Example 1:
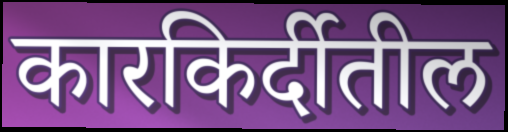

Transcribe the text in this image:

कारकिर्दीतील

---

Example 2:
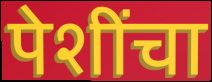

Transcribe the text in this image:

पेशींचा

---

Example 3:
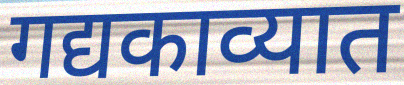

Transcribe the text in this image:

गद्यकाव्यात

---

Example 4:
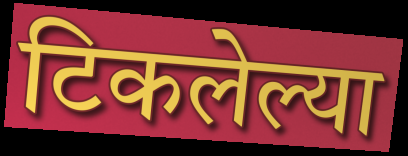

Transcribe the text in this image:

टिकलेल्या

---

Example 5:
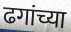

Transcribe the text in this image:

ढगांच्या